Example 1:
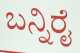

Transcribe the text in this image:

ಬನ್ನಿರೈ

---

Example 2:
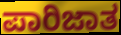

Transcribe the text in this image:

ಪಾರಿಜಾತ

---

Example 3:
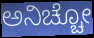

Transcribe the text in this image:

ಅನಿಚ್ಚೋ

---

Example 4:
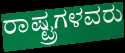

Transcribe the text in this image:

ರಾಷ್ಟ್ರಗಳವರು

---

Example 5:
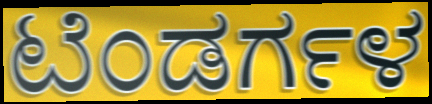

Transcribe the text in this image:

ಟೆಂಡರ್ಗಳ